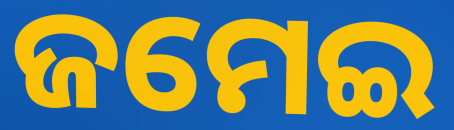
ଜମେଇ